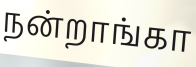
நன்றாங்கா